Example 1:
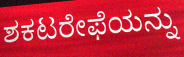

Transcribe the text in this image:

ಶಕಟರೇಫೆಯನ್ನು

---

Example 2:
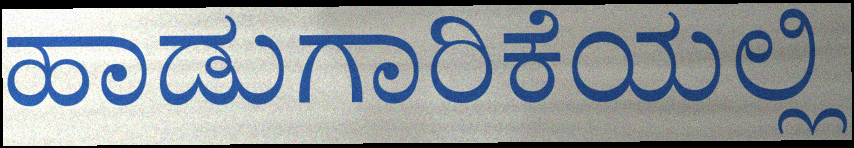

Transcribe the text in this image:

ಹಾಡುಗಾರಿಕೆಯಲ್ಲಿ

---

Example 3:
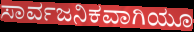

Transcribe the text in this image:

ಸಾರ್ವಜನಿಕವಾಗಿಯೂ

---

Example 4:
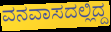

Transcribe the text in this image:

ವನವಾಸದಲ್ಲಿದ್ದ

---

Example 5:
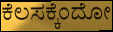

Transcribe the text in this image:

ಕೆಲಸಕ್ಕೆಂದೋ